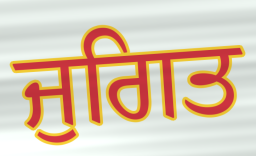
ਜੁਗਿਤ